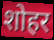
शोहर